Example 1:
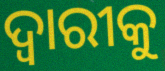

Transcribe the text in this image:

ଦ୍ଵାରୀକୁ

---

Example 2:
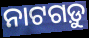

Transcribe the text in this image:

ନାଟଗଡ଼ୁ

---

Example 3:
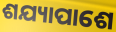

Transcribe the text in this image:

ଶଯ୍ୟାପାଶେ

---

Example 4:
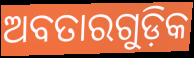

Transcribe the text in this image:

ଅବତାରଗୁଡ଼ିକ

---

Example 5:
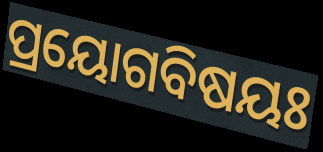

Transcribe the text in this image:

ପ୍ରୟୋଗବିଷୟଃ